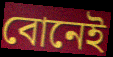
বোনেই